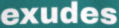
exudes